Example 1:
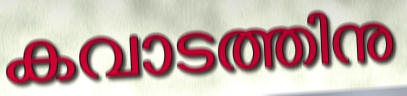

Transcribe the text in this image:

കവാടത്തിനു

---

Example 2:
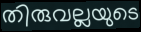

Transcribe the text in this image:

തിരുവല്ലയുടെ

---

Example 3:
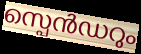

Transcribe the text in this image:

സ്പെൻഡറും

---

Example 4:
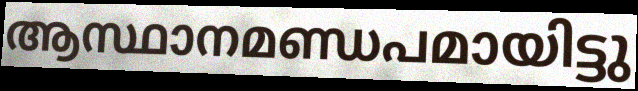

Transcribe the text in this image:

ആസ്ഥാനമണ്ഡപമായിട്ടു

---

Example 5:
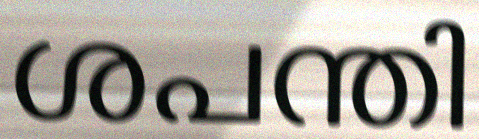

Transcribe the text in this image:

ശപന്തി